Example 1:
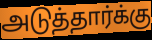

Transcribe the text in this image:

அடுத்தார்க்கு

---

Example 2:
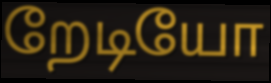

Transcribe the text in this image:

றேடியோ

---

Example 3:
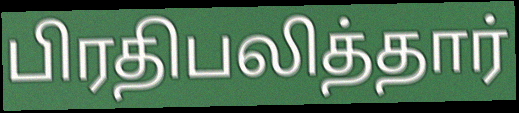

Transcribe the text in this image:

பிரதிபலித்தார்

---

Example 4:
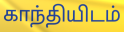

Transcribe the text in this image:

காந்தியிடம்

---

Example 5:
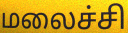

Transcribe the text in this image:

மலைச்சி